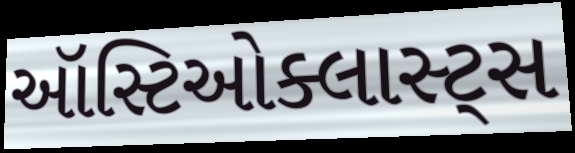
ઑસ્ટિઓક્લાસ્ટ્સ